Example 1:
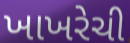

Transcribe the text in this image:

ખાખરેચી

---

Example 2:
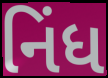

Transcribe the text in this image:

નિંધ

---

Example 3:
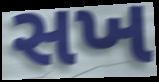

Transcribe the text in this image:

સખ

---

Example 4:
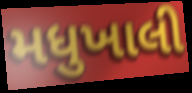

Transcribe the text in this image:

મધુખાલી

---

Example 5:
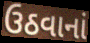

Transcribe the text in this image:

ઉઠવાનાં